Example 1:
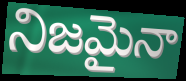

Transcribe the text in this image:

నిజమైనా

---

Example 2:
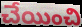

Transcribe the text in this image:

చేయించి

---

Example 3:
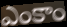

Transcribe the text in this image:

ఎంకాం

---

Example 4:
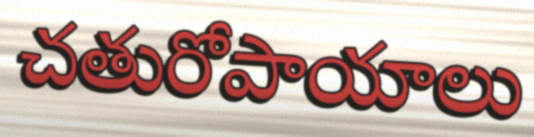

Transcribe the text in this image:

చతురోపాయాలు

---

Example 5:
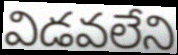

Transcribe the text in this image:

విడవలేని